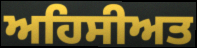
ਅਹਿਸੀਅਤ